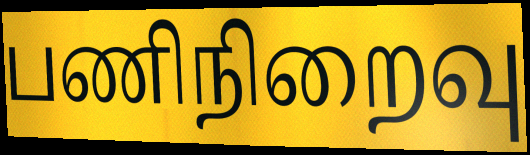
பணிநிறைவு